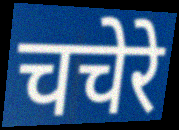
चचेरे